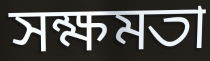
সক্ষমতা